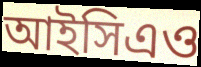
আইসিএও